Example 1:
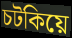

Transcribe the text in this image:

চটকিয়ে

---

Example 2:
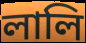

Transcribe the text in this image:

লালি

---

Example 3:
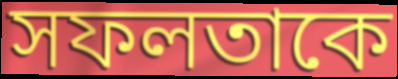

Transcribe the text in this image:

সফলতাকে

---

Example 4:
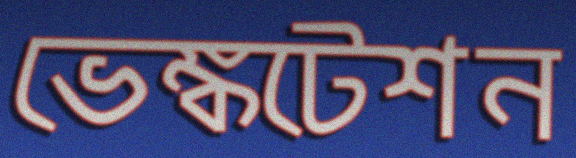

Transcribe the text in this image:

ভেঙ্কটেশন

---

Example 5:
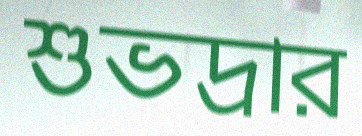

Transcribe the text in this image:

শুভদ্রার